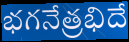
భగనేత్రభిదే